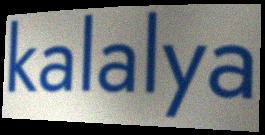
kalalya